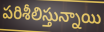
పరిశీలిస్తున్నాయి